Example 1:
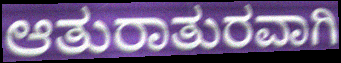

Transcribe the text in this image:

ಆತುರಾತುರವಾಗಿ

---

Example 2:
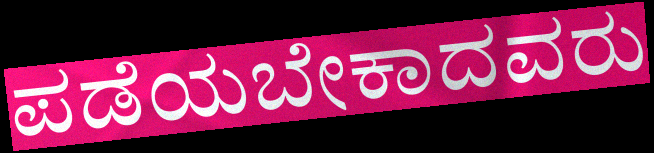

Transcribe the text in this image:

ಪಡೆಯಬೇಕಾದವರು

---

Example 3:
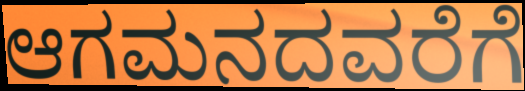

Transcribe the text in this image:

ಆಗಮನದವರೆಗೆ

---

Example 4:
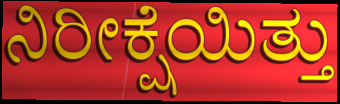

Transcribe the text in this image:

ನಿರೀಕ್ಷೆಯಿತ್ತು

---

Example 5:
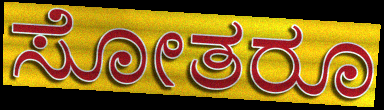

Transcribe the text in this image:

ಸೋತರೂ